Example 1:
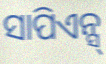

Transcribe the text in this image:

ସାପିଏନ୍ସ୍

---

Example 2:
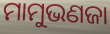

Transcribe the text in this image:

ମାମୁଭଣଜା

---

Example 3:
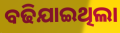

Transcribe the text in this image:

ବଢିଯାଇଥିଲା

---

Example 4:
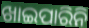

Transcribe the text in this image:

ଖାଇପାରିନି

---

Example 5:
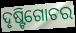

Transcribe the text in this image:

ଦୃଷ୍ଟିଗୋଚର